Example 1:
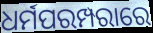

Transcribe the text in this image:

ଧର୍ମପରମ୍ପରାରେ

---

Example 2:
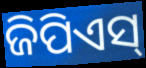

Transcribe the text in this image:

ଜିପିଏସ୍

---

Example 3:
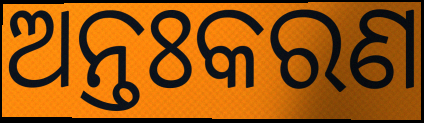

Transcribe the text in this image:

ଅନ୍ତଃକରଣ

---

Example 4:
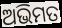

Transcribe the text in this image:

ଅଭିମତ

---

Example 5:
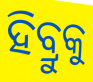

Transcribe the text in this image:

ହିବ୍ରୁକୁ